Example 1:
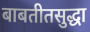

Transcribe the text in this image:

बाबतीतसुद्धा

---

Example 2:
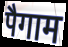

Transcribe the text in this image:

पैगाम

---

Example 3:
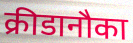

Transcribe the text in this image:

क्रीडानौका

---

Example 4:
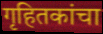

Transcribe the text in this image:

गृहितकांचा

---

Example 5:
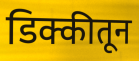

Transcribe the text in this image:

डिक्कीतून